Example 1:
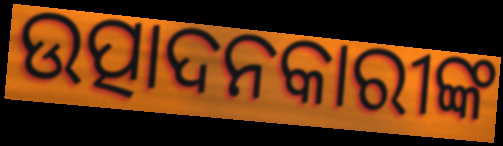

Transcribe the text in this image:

ଉତ୍ପାଦନକାରୀଙ୍କ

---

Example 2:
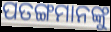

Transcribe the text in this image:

ପତଙ୍ଗମାନଙ୍କୁ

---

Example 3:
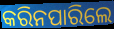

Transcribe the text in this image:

କରିନପାରିଲେ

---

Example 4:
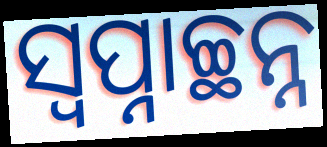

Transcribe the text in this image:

ସ୍ଵପ୍ନାଚ୍ଛନ୍ନ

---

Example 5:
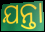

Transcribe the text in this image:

ଯନ୍ତା